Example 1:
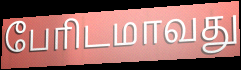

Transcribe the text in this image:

பேரிடமாவது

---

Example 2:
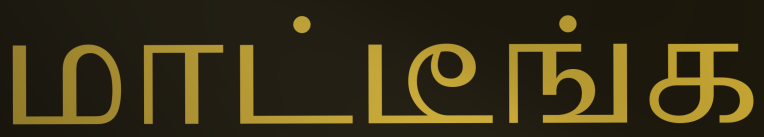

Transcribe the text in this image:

மாட்டீங்க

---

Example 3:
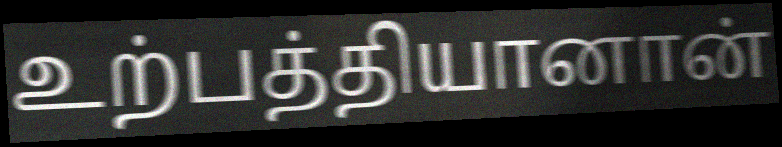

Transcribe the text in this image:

உற்பத்தியானான்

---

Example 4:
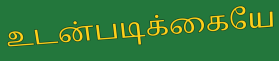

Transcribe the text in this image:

உடன்படிக்கையே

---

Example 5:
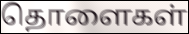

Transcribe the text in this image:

தொளைகள்